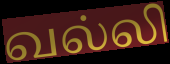
வல்லி